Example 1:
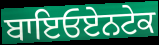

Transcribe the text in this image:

ਬਾਇਓਏਨਟੇਕ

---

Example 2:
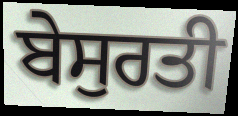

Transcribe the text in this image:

ਬੇਸੁਰਤੀ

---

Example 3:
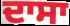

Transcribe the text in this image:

ਦਾਸਾ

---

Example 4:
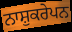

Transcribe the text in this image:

ਨਾਸ਼ੁਕਰੇਪਨ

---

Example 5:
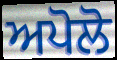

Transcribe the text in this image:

ਅਪੋਲੋ